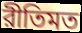
রীতিমত